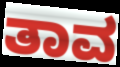
ತಾವ